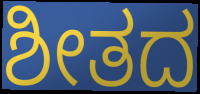
ಶೀತದ